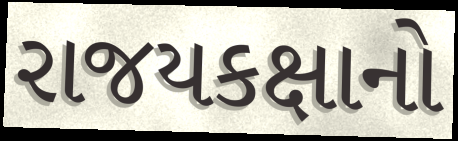
રાજયકક્ષાનો